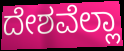
ದೇಶವೆಲ್ಲಾ